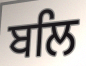
ਬਲਿ